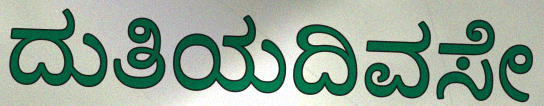
ದುತಿಯದಿವಸೇ